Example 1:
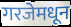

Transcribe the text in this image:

गरजेमधून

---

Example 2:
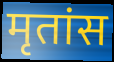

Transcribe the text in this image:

मृतांस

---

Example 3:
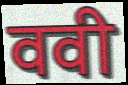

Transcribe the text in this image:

ववी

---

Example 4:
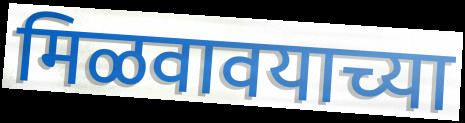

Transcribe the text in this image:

मिळवावयाच्या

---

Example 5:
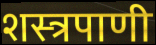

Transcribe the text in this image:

शस्त्रपाणी